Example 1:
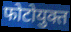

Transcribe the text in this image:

फोटोयुक्त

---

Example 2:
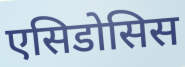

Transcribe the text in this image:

एसिडोसिस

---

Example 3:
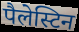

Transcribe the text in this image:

पैलेस्टिन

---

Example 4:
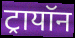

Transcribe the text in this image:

ट्रायॉन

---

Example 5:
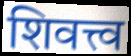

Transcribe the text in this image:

शिवत्त्व